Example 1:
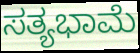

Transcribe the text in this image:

ಸತ್ಯಭಾಮೆ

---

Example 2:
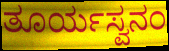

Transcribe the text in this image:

ತೂರ್ಯಸ್ವನಂ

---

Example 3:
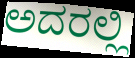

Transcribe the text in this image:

ಅದರಲ್ಲಿ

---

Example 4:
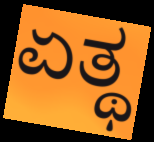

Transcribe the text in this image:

ಏತ್ಥ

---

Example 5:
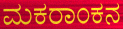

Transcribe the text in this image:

ಮಕರಾಂಕನ